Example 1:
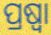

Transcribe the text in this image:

ପ୍ରଷ୍ୱା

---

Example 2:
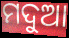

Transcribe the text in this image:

ମଦୁଆ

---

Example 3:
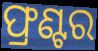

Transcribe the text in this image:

ଫ୍ରଣ୍ଟର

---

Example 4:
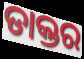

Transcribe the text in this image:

ଡାକ୍ତର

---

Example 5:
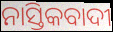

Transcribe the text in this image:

ନାସ୍ତିକବାଦୀ